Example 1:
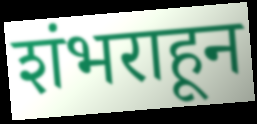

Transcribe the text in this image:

शंभराहून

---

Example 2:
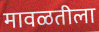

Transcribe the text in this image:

मावळतीला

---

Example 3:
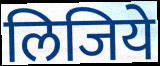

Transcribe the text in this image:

लिजिये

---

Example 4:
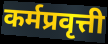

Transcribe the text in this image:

कर्मप्रवृत्ती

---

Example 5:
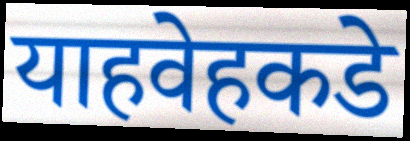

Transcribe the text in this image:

याहवेहकडे